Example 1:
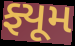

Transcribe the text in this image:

ફ્યૂમ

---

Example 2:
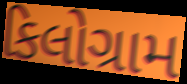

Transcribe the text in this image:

કિલોગ્રામ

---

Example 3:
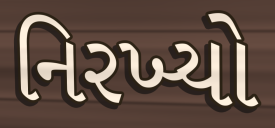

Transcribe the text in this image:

નિરખ્યો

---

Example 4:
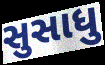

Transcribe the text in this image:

સુસાધુ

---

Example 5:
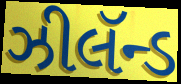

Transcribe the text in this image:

ઝીલૅન્ડ